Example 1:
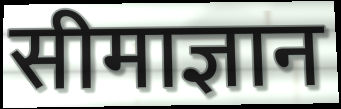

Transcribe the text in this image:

सीमाज्ञान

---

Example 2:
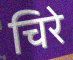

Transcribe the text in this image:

चिरे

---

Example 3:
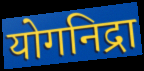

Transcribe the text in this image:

योगनिद्रा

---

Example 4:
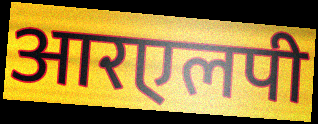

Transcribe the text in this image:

आरएलपी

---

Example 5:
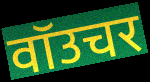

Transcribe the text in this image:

वॉउचर